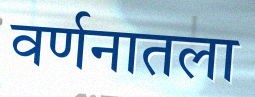
वर्णनातला